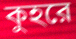
কুহরে